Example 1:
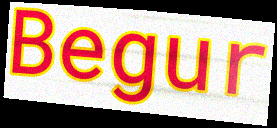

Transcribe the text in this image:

Begur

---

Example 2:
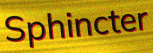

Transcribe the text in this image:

Sphincter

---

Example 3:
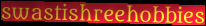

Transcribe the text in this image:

swastishreehobbies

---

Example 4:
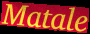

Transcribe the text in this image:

Matale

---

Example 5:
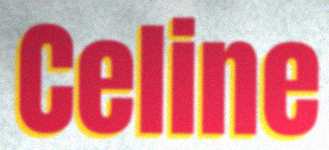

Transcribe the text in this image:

Celine